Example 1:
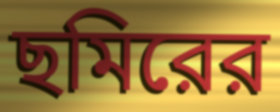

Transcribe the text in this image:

ছমিরের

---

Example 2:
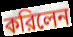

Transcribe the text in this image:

করিলেন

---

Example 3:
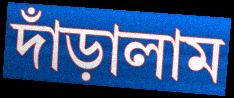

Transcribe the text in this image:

দাঁড়ালাম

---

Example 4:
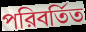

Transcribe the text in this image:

পরিবর্তিত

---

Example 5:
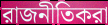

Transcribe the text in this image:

রাজনীতিকরা